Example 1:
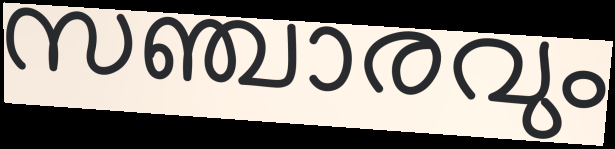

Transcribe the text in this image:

സഞ്ചാരവും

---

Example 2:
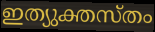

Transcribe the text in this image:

ഇത്യുക്തസ്തം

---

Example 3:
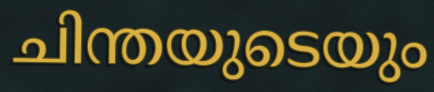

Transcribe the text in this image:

ചിന്തയുടെയും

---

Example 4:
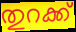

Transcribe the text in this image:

തുറക്ക്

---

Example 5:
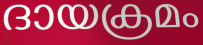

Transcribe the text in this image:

ദായക്രമം